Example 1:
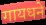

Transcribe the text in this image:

गायधने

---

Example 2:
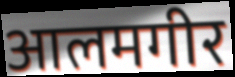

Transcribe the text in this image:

आलमगीर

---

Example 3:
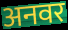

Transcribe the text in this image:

अनवर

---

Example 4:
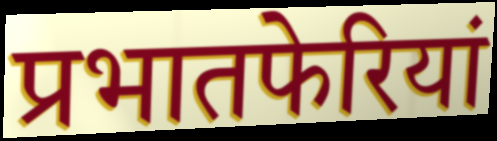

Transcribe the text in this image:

प्रभातफेरियां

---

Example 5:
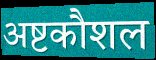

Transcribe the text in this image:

अष्टकौशल